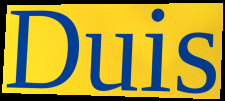
Duis